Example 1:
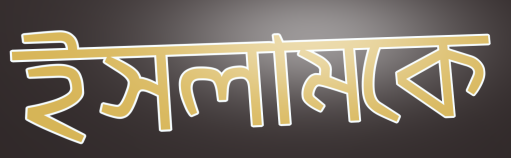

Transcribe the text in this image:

ইসলামকে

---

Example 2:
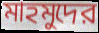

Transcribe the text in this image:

মাহমুদের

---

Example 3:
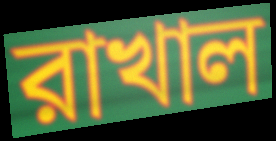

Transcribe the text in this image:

রাখাল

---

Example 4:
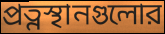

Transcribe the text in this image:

প্রত্নস্থানগুলোর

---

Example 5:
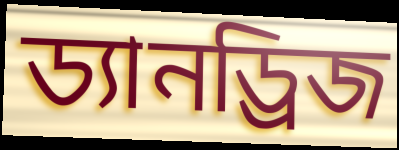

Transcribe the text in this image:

ড্যানড্রিজ